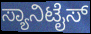
ಸ್ಯಾನಿಟೈಸ್